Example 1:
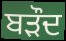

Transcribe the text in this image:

ਬੜੌਦ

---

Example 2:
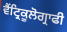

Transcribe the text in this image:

ਵੈਂਟ੍ਰਿਕੂਲੋਗ੍ਰਾਫੀ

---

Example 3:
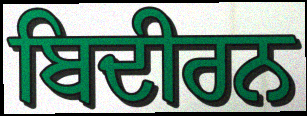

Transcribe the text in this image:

ਬਿਦੀਰਨ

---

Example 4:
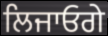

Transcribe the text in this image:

ਲਿਜਾਓਗੇ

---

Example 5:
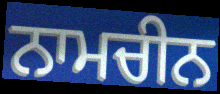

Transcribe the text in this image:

ਨਾਮਚੀਨ